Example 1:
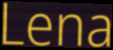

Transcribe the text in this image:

Lena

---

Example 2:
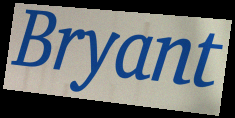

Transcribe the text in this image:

Bryant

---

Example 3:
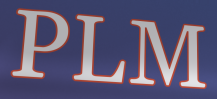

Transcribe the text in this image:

PLM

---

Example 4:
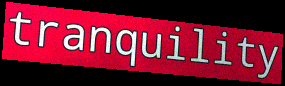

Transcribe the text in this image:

tranquility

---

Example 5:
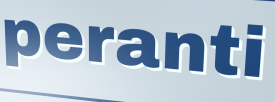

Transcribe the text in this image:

peranti